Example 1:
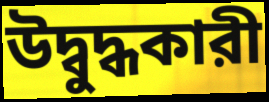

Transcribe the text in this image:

উদ্বুদ্ধকারী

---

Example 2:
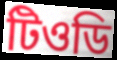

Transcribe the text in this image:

টিওডি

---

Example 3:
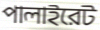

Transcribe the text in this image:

পালাইরেট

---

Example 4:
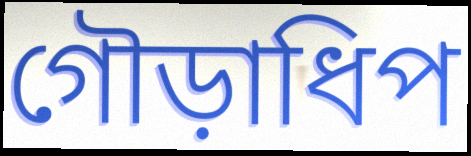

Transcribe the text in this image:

গৌড়াধিপ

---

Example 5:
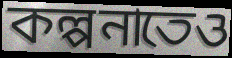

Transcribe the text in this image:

কল্পনাতেও